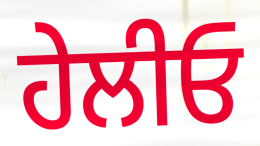
ਹੇਲੀਓ